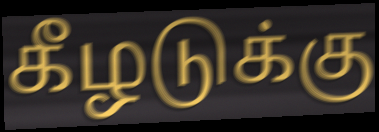
கீழடுக்கு